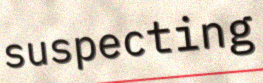
suspecting